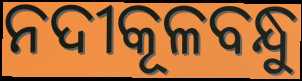
ନଦୀକୂଳବନ୍ଧୁ